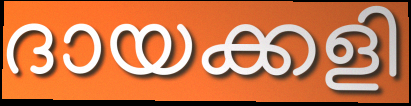
ദായക്കളി